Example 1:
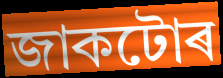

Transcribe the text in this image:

জাকটোৰ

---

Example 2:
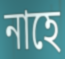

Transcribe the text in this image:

নাহে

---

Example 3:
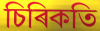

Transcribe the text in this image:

চিৰিকতি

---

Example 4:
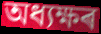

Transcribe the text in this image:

অধ্যক্ষৰ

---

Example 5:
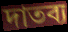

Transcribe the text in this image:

দাতব্য